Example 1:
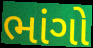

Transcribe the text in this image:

ભાંગો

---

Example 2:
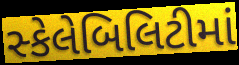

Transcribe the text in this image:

સ્કેલેબિલિટીમાં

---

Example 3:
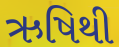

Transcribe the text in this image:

ઋષિથી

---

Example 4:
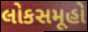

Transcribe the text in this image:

લોકસમૂહો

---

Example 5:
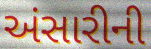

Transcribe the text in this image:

અંસારીની